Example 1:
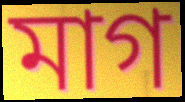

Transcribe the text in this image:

মাগ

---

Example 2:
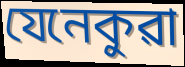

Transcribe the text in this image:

যেনেকুৱা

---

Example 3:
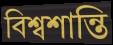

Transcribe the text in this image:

বিশ্বশান্তি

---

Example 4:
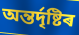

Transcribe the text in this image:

অন্তৰ্দৃষ্টিৰ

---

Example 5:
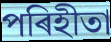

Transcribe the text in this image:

পৰিহীতা